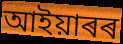
আইয়াৰৰ